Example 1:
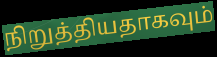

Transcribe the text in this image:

நிறுத்தியதாகவும்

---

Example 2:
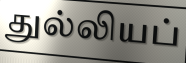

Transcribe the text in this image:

துல்லியப்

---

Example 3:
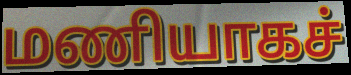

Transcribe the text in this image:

மணியாகச்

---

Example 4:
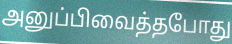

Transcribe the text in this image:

அனுப்பிவைத்தபோது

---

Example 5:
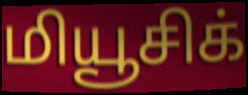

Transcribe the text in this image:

மியூசிக்